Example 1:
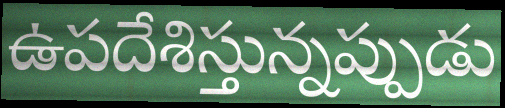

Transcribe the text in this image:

ఉపదేశిస్తున్నప్పుడు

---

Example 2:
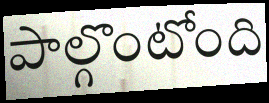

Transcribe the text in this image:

పాల్గొంటోంది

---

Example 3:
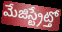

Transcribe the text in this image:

మేజిస్ట్రేట్తో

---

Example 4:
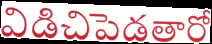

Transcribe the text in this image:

విడిచిపెడతారో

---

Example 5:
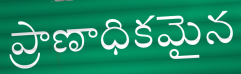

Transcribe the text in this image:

ప్రాణాధికమైన